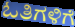
ಓತಿಗಳಿಗೆ